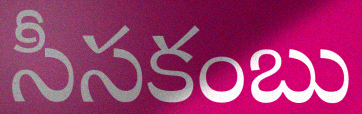
సీసకంబు